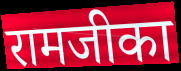
रामजीका